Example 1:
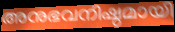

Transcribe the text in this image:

അനുഭവനിഷ്ഠമായി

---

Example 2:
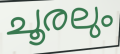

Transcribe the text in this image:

ചൂരലും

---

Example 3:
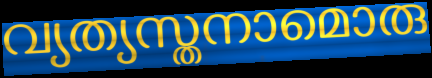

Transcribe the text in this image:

വ്യത്യസ്തനാമൊരു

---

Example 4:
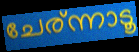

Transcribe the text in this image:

ചേര്ന്നാടൂ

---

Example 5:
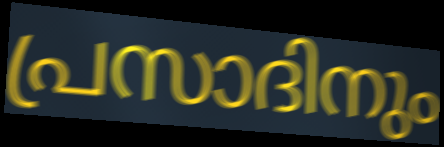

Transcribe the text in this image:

പ്രസാദിനും